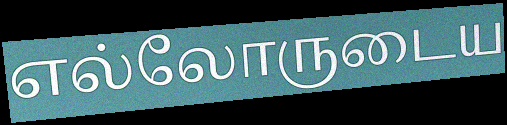
எல்லோருடைய